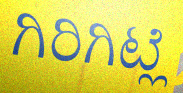
ಗಿರಿಗಿಟ್ಲೆ